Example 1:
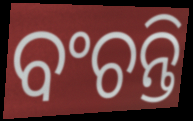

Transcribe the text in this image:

ବଂଚନ୍ତି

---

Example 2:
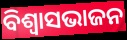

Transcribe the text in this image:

ବିଶ୍ଵାସଭାଜନ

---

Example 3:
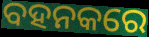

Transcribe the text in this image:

ବହନକରେ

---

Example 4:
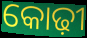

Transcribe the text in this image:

କୋଢ଼ୀ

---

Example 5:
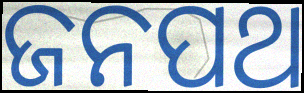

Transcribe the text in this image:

ଜନପଥ